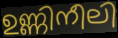
ഉണ്ണിനീലി